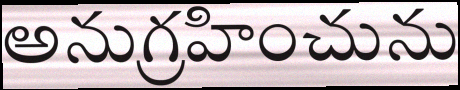
అనుగ్రహించును